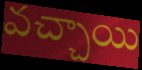
వచ్చాయి